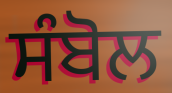
ਸੰਬੋਲ